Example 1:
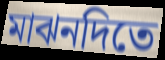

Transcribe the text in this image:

মাঝনদিতে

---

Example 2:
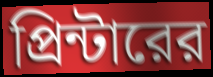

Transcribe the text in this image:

প্রিন্টারের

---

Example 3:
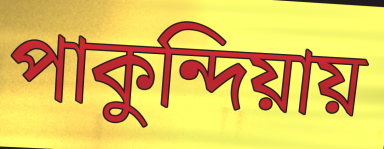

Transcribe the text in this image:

পাকুন্দিয়ায়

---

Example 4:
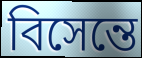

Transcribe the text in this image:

বিসেন্তে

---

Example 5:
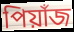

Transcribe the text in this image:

পিয়াঁজ